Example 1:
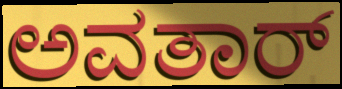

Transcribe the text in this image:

ಅವತಾರ್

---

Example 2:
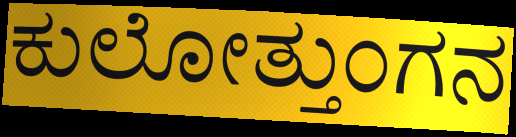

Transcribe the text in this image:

ಕುಲೋತ್ತುಂಗನ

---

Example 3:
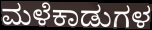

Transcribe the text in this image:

ಮಳೆಕಾಡುಗಳ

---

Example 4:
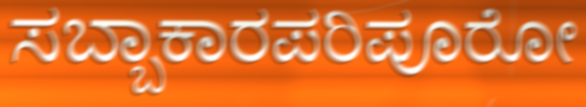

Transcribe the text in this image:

ಸಬ್ಬಾಕಾರಪರಿಪೂರೋ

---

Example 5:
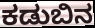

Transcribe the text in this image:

ಕಡುಬಿನ